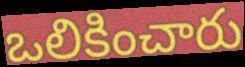
ఒలికించారు